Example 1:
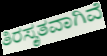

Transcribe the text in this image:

ತಿರಸ್ಕೃತವಾಗಿವೆ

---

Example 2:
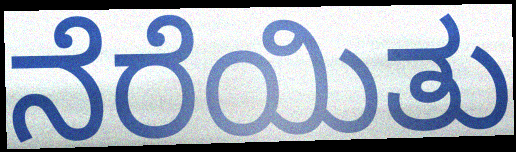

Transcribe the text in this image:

ನೆರೆಯಿತು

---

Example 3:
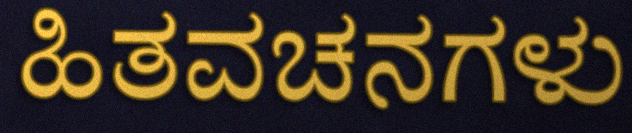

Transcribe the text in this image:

ಹಿತವಚನಗಳು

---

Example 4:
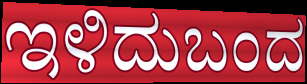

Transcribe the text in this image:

ಇಳಿದುಬಂದ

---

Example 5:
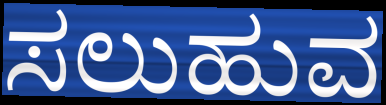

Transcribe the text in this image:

ಸಲುಹುವ